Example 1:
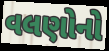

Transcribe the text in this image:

વલણોનો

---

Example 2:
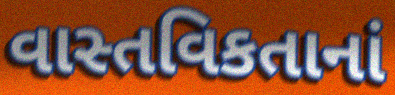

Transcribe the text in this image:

વાસ્તવિકતાનાં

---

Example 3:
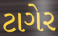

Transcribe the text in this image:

ટાગેર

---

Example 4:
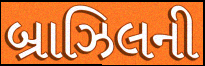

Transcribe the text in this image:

બ્રાઝિલની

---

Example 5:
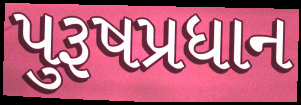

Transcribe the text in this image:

પુરૂષપ્રધાન